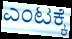
ಎಂಟಕ್ಕೆ